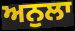
ਅਨੁਲਾ